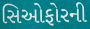
સિઓફોરની